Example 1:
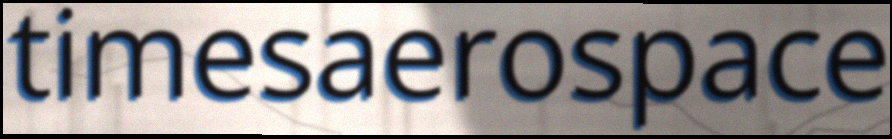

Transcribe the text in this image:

timesaerospace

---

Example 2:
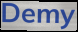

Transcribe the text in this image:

Demy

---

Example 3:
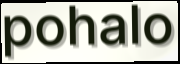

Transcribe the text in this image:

pohalo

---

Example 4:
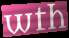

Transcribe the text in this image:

wth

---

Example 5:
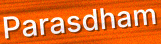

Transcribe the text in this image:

Parasdham